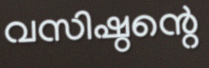
വസിഷ്ഠന്റെ